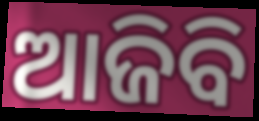
ଆଜିବି